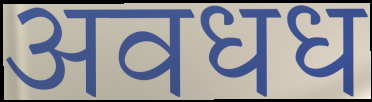
अवधध